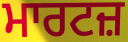
ਮਾਰਟਜ਼